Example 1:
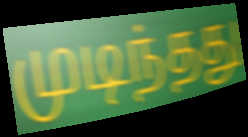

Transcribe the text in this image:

முடிந்தது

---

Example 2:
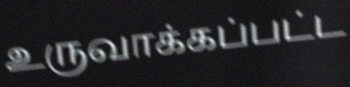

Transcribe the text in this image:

உருவாக்கப்பட்ட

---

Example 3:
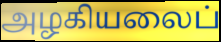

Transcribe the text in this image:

அழகியலைப்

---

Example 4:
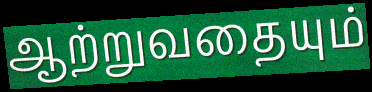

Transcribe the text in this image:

ஆற்றுவதையும்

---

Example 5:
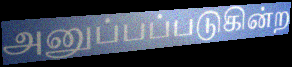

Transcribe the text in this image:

அனுப்பப்படுகின்ற